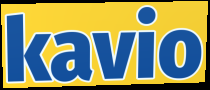
kavio